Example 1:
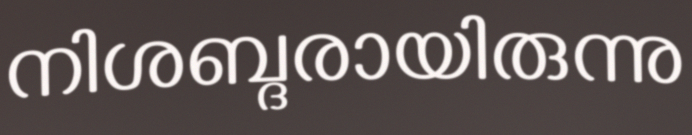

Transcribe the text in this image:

നിശബ്ദരായിരുന്നു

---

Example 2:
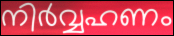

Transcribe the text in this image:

നിർവ്വഹണം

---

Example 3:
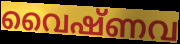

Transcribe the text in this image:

വൈഷ്ണവ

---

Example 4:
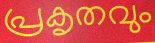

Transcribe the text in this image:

പ്രകൃതവും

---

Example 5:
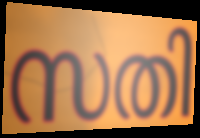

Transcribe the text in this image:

സതി